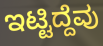
ಇಟ್ಟಿದ್ದೆವು